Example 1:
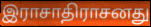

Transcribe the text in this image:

இராசாதிராசனது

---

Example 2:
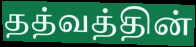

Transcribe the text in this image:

தத்வத்தின்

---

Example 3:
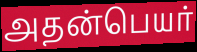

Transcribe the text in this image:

அதன்பெயர்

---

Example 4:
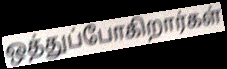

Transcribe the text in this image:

ஒத்துப்போகிறார்கள்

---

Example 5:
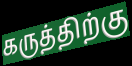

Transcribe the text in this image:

கருத்திற்கு